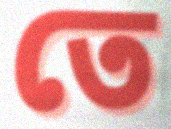
তে